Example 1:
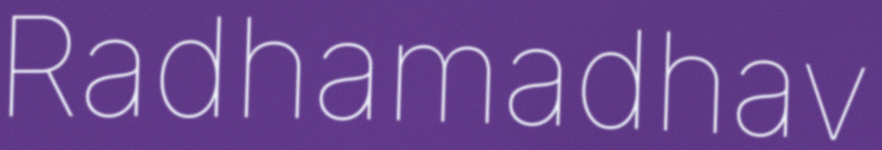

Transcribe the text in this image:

Radhamadhav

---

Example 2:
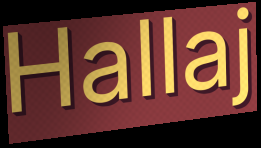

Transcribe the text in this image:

Hallaj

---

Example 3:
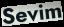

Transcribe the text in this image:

Sevim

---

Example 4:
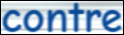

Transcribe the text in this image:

contre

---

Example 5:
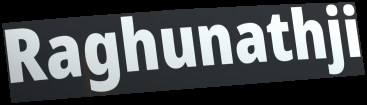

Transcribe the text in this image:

Raghunathji